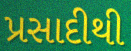
પ્રસાદીથી